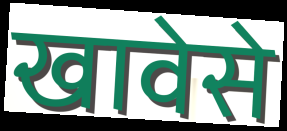
खावेसे